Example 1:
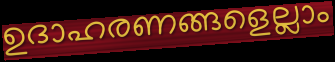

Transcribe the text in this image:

ഉദാഹരണങ്ങളെല്ലാം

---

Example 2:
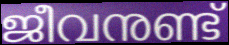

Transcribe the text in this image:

ജീവനുണ്ട്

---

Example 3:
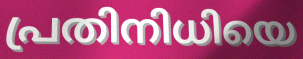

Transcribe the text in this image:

പ്രതിനിധിയെ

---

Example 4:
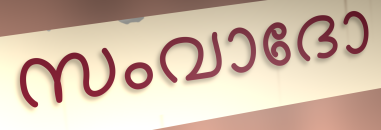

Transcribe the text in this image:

സംവാദോ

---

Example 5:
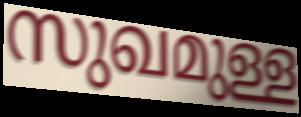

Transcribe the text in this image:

സുഖമുള്ള